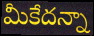
మీకేదన్నా